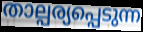
താല്പര്യപ്പെടുന്ന